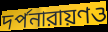
দর্পনারায়ণও